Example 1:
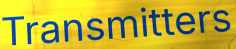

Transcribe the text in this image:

Transmitters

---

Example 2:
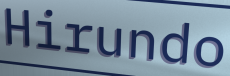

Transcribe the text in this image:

Hirundo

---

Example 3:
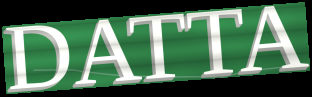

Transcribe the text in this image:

DATTA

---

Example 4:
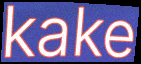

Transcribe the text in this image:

kake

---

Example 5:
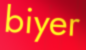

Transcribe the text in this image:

biyer